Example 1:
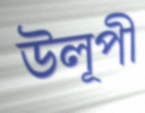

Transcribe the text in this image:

উলূপী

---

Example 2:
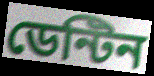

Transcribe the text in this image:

ডেন্টিন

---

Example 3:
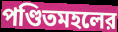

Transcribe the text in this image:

পণ্ডিতমহলের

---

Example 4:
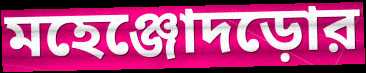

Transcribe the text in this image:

মহেঞ্জোদড়োর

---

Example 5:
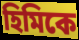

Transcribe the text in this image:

হিমিকে